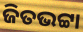
ଜିତଭଟ୍ଟା